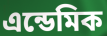
এন্ডেমিক